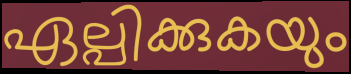
ഏല്പിക്കുകയും